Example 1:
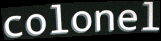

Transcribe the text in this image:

colonel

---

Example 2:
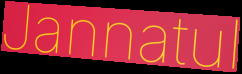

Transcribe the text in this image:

Jannatul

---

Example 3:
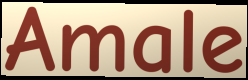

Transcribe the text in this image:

Amale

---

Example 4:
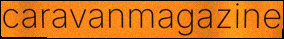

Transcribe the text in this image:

caravanmagazine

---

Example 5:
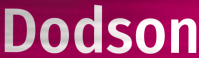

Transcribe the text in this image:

Dodson